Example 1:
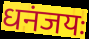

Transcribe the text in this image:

धनंजयः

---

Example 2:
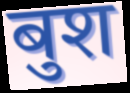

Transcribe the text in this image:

बुश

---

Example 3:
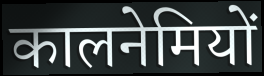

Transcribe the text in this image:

कालनेमियों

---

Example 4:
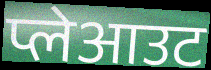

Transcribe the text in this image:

प्लेआउट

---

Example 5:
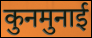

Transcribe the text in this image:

कुनमुनाई